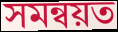
সমন্বয়ত